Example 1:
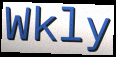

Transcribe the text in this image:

Wkly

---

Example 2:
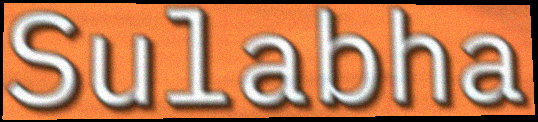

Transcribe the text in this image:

Sulabha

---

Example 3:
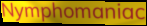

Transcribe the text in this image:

Nymphomaniac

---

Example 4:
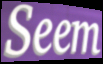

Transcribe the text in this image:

Seem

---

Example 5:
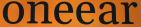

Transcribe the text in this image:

oneear